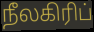
நீலகிரிப்